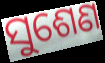
ସୁଶେଣ